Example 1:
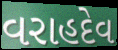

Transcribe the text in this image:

વરાહદેવ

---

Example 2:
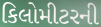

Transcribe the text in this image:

કિલોમીટરની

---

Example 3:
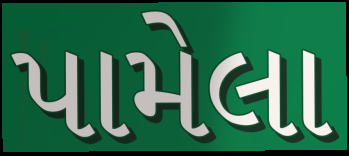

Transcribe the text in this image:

પામેલા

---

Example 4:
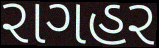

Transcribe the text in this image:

રાગહર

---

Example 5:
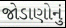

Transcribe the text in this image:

જોડાણોનું